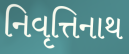
નિવૃત્તિનાથ